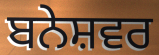
ਬਨੇਸ਼ਵਰ